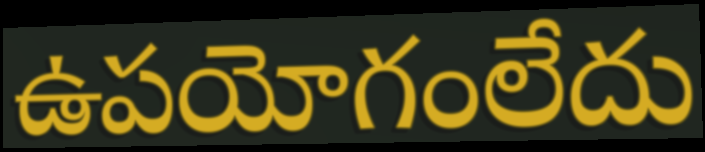
ఉపయోగంలేదు